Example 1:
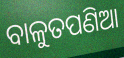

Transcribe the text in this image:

ବାଳୁତପଣିଆ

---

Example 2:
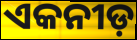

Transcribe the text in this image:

ଏକନୀଡ଼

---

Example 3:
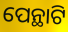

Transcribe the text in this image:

ପେନ୍ଥାଟି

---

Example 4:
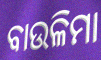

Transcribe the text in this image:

ବାଉଳିମା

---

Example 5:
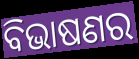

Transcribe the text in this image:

ବିଭାଷଣର